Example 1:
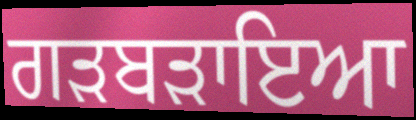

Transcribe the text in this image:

ਗੜਬੜਾਇਆ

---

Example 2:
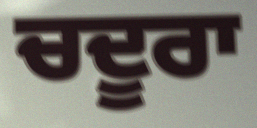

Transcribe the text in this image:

ਚਦੂਰਾ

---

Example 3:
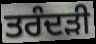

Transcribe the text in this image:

ਤਰੰਦੜੀ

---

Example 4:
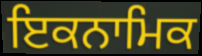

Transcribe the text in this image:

ਇਕਨਾਮਿਕ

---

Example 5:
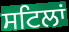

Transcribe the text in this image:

ਸਟਿਲਾਂ